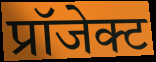
प्रॉजेक्‍ट